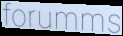
forumms